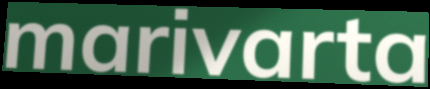
marivarta